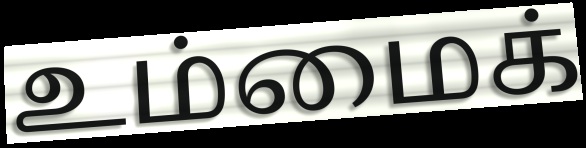
உம்மைக்